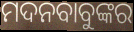
ମଦନବାବୁଙ୍କର